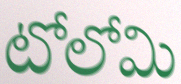
టోలోమి